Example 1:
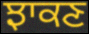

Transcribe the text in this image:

ਝਾਕਣ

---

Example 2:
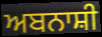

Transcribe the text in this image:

ਅਬਨਾਸ਼ੀ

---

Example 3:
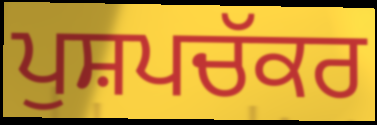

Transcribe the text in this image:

ਪੁਸ਼ਪਚੱਕਰ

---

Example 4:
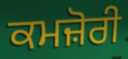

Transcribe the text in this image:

ਕਮਜ਼ੋਰੀ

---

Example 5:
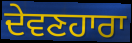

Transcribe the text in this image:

ਦੇਵਣਹਾਰਾ